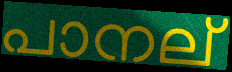
പാനല്